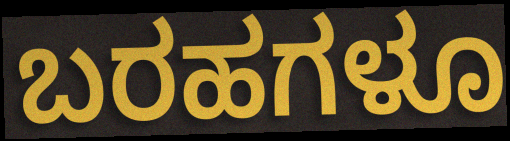
ಬರಹಗಳೂ